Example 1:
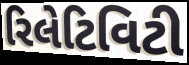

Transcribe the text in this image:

રિલેટિવિટી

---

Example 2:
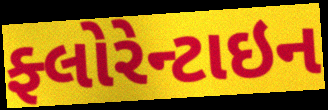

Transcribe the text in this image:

ફ્લોરેન્ટાઇન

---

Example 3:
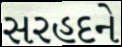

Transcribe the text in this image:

સરહદને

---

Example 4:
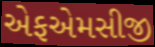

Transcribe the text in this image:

એફએમસીજી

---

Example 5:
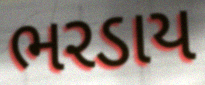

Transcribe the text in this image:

ભરડાય